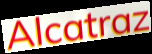
Alcatraz